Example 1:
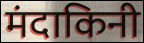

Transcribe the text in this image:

मंदाकिनी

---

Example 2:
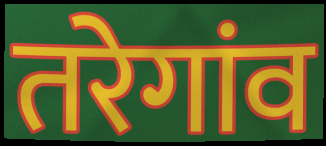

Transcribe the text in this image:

तरेगांव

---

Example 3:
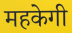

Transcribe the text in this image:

महकेगी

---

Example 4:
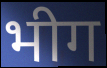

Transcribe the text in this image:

भीग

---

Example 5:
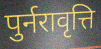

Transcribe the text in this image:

पुर्नरावृत्ति